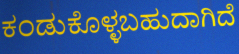
ಕಂಡುಕೊಳ್ಳಬಹುದಾಗಿದೆ